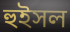
হুইসল